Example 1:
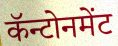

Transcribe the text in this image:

कॅन्टोनमेंट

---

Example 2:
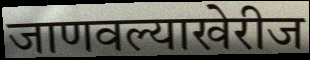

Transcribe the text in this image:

जाणवल्याखेरीज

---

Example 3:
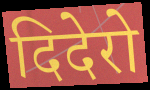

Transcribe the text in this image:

दिदेरो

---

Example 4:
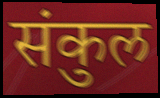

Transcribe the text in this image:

संकुल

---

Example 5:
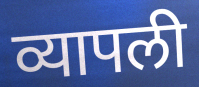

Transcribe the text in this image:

व्यापली